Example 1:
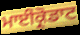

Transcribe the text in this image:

ਮਾਈਕ੍ਰੋਡਾਟ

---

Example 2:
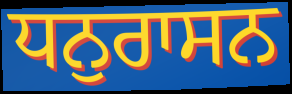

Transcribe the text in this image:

ਧਨੁਰਾਸਨ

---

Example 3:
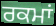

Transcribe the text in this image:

ਰਕਮਾਂ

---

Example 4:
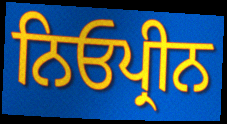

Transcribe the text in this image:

ਨਿਓਪ੍ਰੀਨ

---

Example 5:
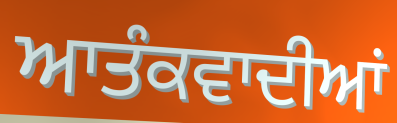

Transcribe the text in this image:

ਆਤੰਕਵਾਦੀਆਂ